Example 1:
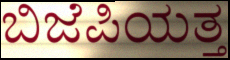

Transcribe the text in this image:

ಬಿಜೆಪಿಯತ್ತ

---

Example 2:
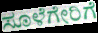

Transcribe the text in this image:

ಸೂಳೆಗೇರಿಗೆ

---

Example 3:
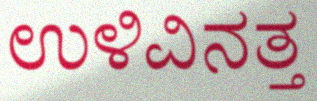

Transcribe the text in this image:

ಉಳಿವಿನತ್ತ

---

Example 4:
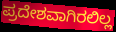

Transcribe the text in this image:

ಪ್ರದೇಶವಾಗಿರಲಿಲ್ಲ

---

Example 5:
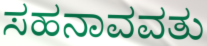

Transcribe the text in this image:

ಸಹನಾವವತು